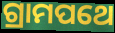
ଗ୍ରାମପଥେ